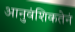
आनुवंशिकतेनं